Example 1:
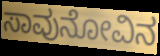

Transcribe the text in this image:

ಸಾವುನೋವಿನ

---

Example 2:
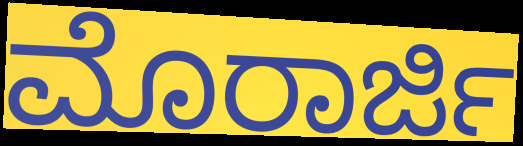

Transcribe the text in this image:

ಮೊರಾರ್ಜಿ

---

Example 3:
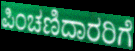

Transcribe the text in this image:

ಪಿಂಚಣಿದಾರರಿಗೆ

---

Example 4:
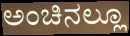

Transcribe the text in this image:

ಅಂಚಿನಲ್ಲೂ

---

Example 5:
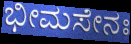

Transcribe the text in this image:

ಭೀಮಸೇನಃ